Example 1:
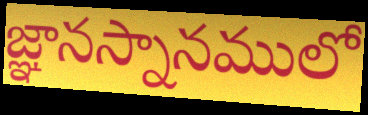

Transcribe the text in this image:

జ్ఞానస్నానములో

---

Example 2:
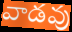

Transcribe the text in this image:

వాడవు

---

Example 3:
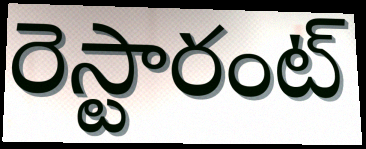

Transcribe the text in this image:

రెస్టారంట్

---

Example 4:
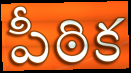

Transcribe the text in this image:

పీఠిక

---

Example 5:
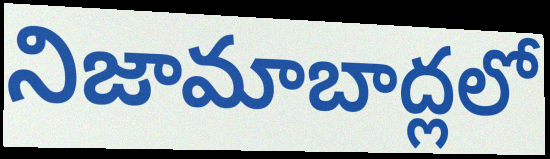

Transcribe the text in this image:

నిజామాబాద్లలో